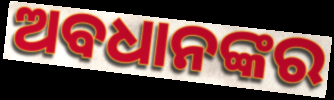
ଅବଧାନଙ୍କର